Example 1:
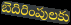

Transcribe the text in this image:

బెదిరింపులకు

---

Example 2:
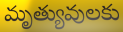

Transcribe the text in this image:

మృత్యువులకు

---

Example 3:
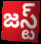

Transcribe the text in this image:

జస్ట్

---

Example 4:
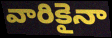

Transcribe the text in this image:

వారికైనా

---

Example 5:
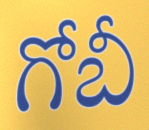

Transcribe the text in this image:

గోబీ